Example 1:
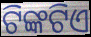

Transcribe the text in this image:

ଟିଙ୍କଟିଏ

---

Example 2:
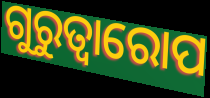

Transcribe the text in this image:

ଗୁରୁତ୍ବାରୋପ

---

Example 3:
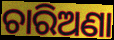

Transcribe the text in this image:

ଚାରିଅଣା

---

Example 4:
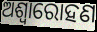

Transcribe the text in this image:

ଅଶ୍ୱାରୋହଣ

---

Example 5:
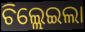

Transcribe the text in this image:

ଚିଲ୍ଲେଇଲା